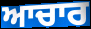
ਆਚਾਰ